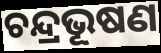
ଚନ୍ଦ୍ରଭୂଷଣ